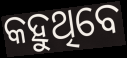
କହୁଥିବେ